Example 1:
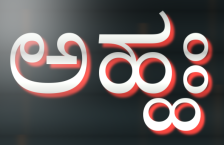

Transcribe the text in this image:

ಅಹ್ಹಃ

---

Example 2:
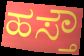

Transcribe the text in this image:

ಹಸ್ತೌ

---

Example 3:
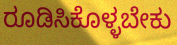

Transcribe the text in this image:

ರೂಡಿಸಿಕೊಳ್ಳಬೇಕು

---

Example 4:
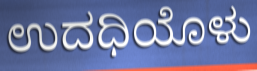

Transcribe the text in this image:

ಉದಧಿಯೊಳು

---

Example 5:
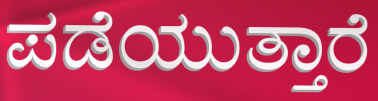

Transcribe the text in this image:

ಪಡೆಯುತ್ತಾರೆ